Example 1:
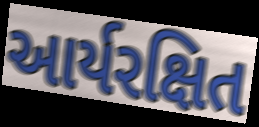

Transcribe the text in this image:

આર્યરક્ષિત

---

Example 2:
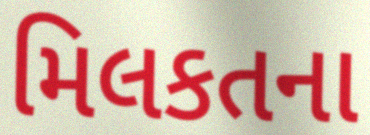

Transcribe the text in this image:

મિલકતના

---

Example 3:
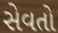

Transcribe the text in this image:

સેવતો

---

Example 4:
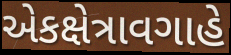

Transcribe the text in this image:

એકક્ષેત્રાવગાહે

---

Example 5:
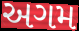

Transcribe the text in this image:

અગમ